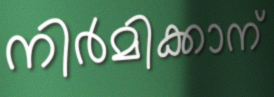
നിർമിക്കാന്